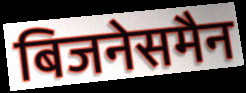
बिजनेसमैन